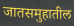
जातसमुहातील